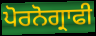
ਪੋਰਨੋਗ੍ਰਾਫੀ